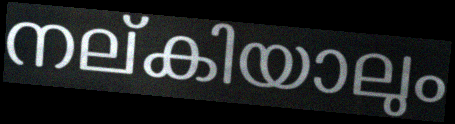
നല്‌കിയാലും